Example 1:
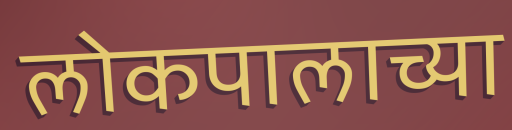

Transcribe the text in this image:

लोकपालाच्या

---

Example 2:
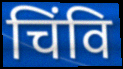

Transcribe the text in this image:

चिंवि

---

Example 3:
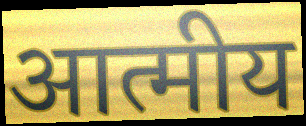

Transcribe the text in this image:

आत्मीय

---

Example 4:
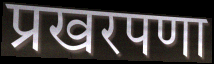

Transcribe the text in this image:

प्रखरपणा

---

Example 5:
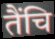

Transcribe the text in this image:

तैंचि